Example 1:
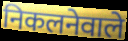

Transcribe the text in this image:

निकलनेवाले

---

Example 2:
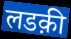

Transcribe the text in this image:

लडक़ी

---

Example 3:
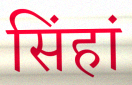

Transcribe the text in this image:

सिंहां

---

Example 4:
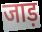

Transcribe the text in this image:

जाड़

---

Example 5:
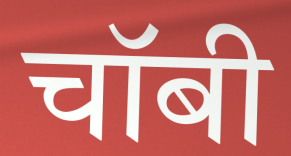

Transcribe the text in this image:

चॉबी